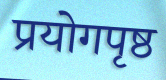
प्रयोगपृष्ठ